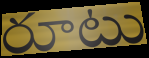
రూటు